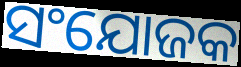
ସଂଯୋଜକ